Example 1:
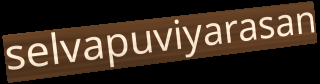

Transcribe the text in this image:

selvapuviyarasan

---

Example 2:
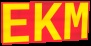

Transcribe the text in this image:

EKM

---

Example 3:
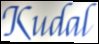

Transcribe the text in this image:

Kudal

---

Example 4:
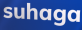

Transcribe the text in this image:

suhaga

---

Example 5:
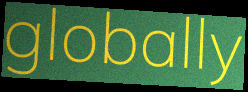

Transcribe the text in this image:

globally